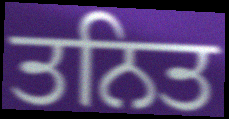
ਤਨਿਤ